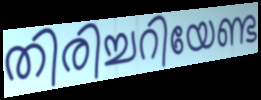
തിരിച്ചറിയേണ്ട